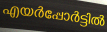
എയർപ്പോർട്ടിൽ